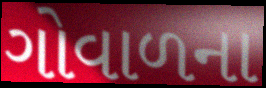
ગોવાળના